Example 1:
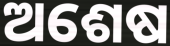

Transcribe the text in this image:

ଅଶେଷ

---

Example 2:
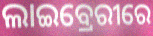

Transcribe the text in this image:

ଲାଇବ୍ରେରୀରେ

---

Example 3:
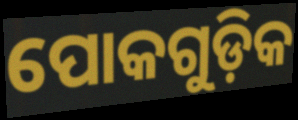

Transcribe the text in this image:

ପୋକଗୁଡ଼ିକ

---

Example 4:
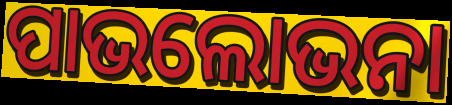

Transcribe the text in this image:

ପାଭଲୋଭନା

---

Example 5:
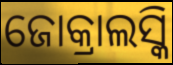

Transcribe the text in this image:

ଜୋକ୍ରାଲସ୍କି